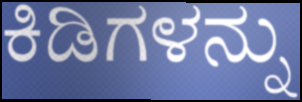
ಕಿಡಿಗಳನ್ನು